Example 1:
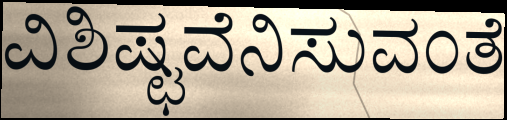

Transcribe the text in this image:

ವಿಶಿಷ್ಟವೆನಿಸುವಂತೆ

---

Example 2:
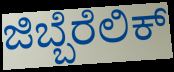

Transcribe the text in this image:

ಜಿಬ್ಬೆರೆಲಿಕ್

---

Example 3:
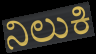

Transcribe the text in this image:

ನಿಲುಕಿ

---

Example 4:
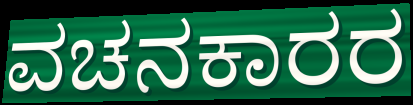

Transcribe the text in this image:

ವಚನಕಾರರ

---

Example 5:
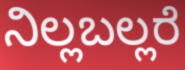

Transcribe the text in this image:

ನಿಲ್ಲಬಲ್ಲರೆ